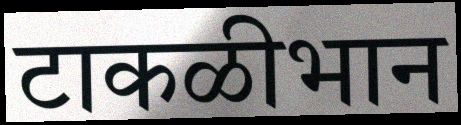
टाकळीभान